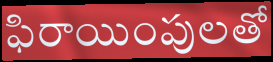
ఫిరాయింపులతో